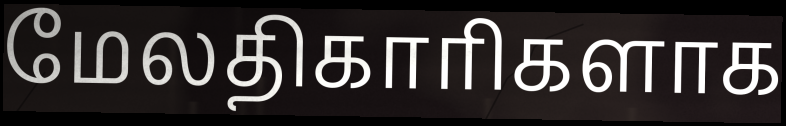
மேலதிகாரிகளாக